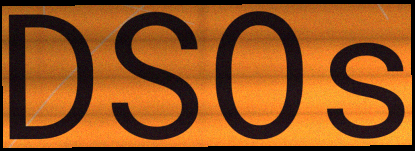
DSOs